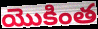
యొకింత